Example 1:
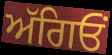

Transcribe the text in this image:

ਅੱਗਿਓਂ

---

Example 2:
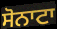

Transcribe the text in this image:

ਸੋਨਾਟਾ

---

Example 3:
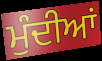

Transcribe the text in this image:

ਮੁੰਦੀਆਂ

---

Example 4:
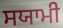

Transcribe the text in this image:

ਸਯਾਮੀ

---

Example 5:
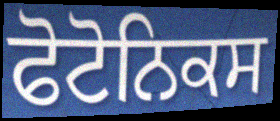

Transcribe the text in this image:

ਫੋਟੋਨਿਕਸ